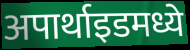
अपार्थाइडमध्ये